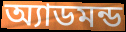
অ্যাডমন্ড